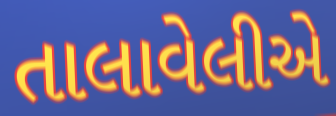
તાલાવેલીએ